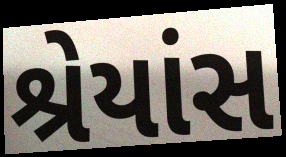
શ્રેયાંસ